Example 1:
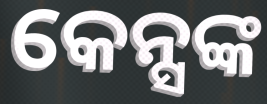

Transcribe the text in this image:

କେନ୍ସଙ୍କ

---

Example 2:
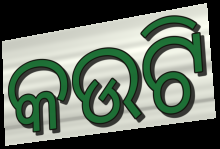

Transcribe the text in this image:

କଉଟି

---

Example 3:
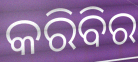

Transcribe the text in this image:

କରିବିର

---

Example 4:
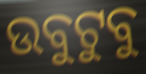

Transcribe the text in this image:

ଉବୁଟୁବୁ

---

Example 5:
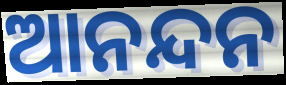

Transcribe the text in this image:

ଆନନ୍ଦନ